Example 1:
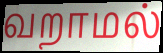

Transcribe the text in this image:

வறாமல்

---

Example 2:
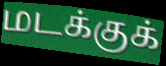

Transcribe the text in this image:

மடக்குக்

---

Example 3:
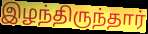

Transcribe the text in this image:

இழந்திருந்தார்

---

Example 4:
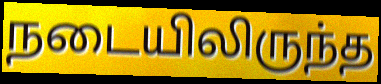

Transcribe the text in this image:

நடையிலிருந்த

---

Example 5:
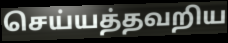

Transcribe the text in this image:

செய்யத்தவறிய